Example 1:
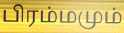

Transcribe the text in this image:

பிரம்மமும்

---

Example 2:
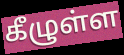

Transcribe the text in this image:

கீழுள்ள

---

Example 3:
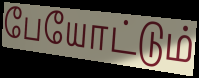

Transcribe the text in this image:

பேயோட்டும்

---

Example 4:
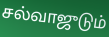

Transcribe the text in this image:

சல்வாஜுடும்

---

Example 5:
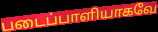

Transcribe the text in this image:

படைப்பாளியாகவே